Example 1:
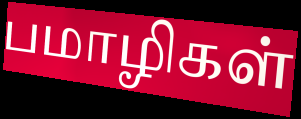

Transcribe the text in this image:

பமாழிகள்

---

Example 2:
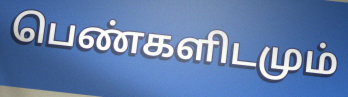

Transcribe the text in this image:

பெண்களிடமும்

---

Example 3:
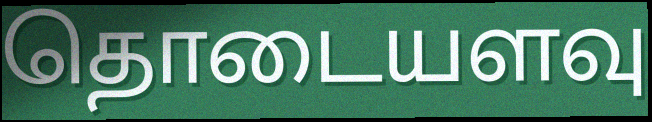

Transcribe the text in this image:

தொடையளவு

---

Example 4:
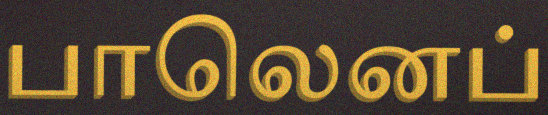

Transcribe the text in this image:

பாலெனப்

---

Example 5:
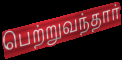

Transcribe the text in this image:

பெற்றுவந்தார்